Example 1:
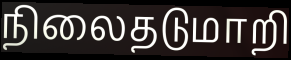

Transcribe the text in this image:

நிலைதடுமாறி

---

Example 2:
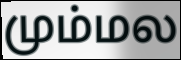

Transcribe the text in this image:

மும்மல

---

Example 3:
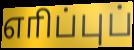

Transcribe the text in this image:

எரிப்புப்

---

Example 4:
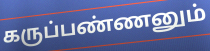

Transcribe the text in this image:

கருப்பண்ணனும்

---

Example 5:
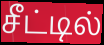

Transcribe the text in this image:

சீட்டில்